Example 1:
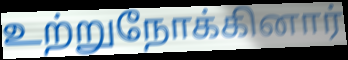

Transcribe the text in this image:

உற்றுநோக்கினார்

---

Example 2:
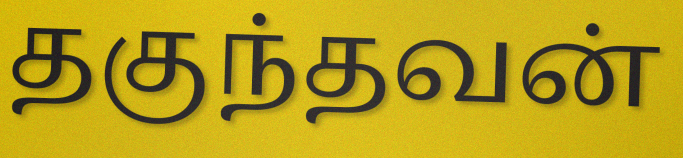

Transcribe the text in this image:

தகுந்தவன்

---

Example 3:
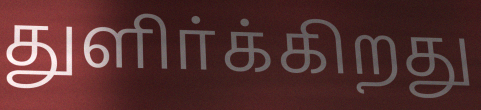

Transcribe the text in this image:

துளிர்க்கிறது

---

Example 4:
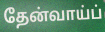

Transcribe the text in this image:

தேன்வாய்ப்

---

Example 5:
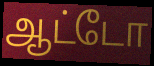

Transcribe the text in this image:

ஆட்டோ